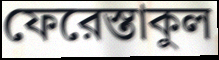
ফেরেস্তাকুল